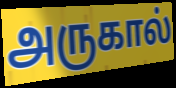
அருகால்